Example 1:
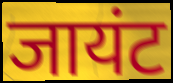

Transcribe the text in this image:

जायंट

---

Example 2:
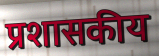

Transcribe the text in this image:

प्रशासकीय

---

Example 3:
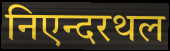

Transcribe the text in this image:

निएन्दरथल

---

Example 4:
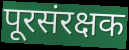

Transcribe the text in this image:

पूरसंरक्षक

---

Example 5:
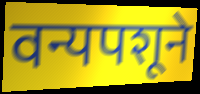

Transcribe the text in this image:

वन्यपशूने